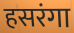
हसरंगा